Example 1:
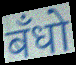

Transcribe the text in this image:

बँधो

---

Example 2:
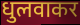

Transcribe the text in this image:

धुलवाकर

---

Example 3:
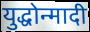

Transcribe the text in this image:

युद्धोन्मादी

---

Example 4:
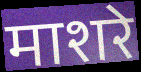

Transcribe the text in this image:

माशरे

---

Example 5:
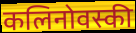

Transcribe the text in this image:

कलिनोवस्की